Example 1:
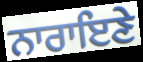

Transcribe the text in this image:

ਨਾਰਾਇਣੇ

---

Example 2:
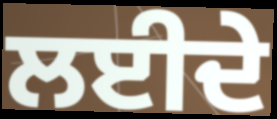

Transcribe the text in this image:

ਲਈਦੇ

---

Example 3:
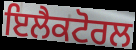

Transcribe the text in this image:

ਇਲੈਕਟੋਰਲ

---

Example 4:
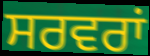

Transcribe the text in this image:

ਸਰਵਰਾਂ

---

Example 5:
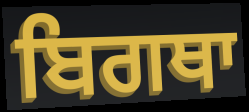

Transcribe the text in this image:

ਬਿਗਥਾ